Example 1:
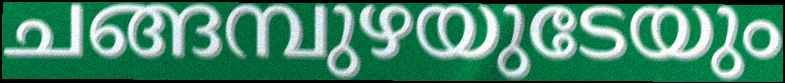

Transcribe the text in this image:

ചങ്ങമ്പുഴയുടേയും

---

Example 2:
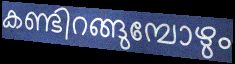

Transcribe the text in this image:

കണ്ടിറങ്ങുമ്പോഴും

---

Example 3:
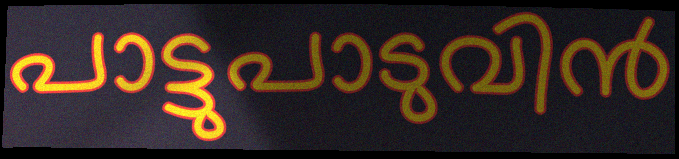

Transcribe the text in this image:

പാട്ടുപാടുവിൻ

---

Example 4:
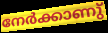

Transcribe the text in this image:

നേർക്കാണു്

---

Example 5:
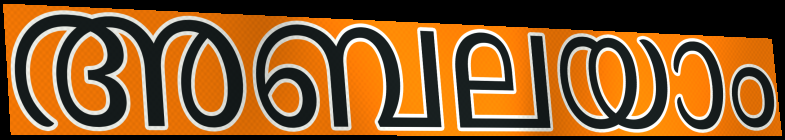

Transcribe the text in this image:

അബലയാം